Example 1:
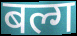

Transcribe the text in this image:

बल्ग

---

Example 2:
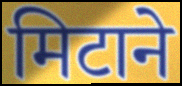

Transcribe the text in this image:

मिटाने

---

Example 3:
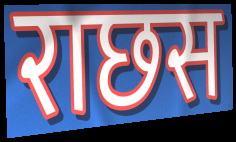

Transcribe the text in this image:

राछस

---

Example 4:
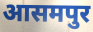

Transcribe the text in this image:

आसमपुर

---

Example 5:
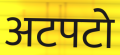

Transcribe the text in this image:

अटपटो